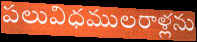
పలువిధములరాళ్లను